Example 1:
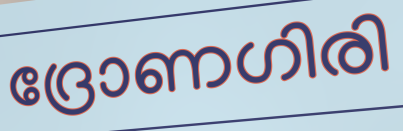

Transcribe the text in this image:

ദ്രോണഗിരി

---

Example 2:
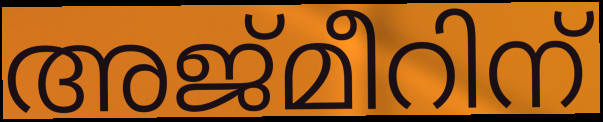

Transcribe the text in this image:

അജ്മീറിന്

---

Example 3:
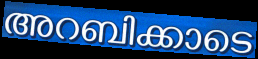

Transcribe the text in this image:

അറബിക്കാടെ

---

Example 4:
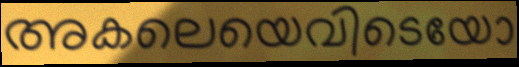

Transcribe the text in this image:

അകലെയെവിടെയോ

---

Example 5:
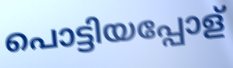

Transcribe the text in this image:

പൊട്ടിയപ്പോള്